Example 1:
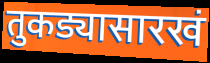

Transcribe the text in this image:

तुकड्यासारखं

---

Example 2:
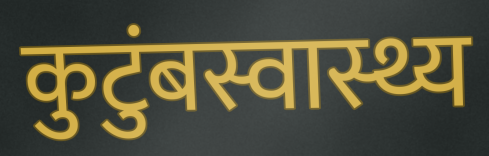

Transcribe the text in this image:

कुटुंबस्वास्थ्य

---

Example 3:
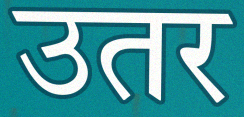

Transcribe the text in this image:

उतर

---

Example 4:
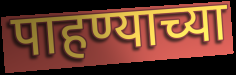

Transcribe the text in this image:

पाहण्याच्या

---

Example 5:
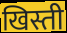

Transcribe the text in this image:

खिस्ती